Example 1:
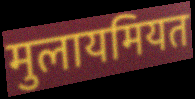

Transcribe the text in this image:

मुलायमियत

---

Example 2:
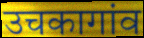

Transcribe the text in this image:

उचकागांव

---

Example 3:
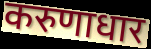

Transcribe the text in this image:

करुणाधार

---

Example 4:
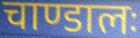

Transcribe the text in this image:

चाण्डालः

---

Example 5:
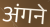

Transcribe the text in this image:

अंगने